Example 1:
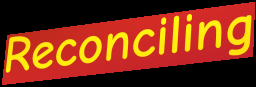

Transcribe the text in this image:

Reconciling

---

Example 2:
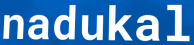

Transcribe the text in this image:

nadukal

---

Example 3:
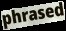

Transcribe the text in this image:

phrased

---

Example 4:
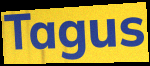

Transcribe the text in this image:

Tagus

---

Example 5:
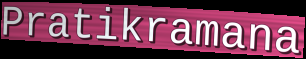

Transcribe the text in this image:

Pratikramana